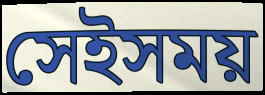
সেইসময়